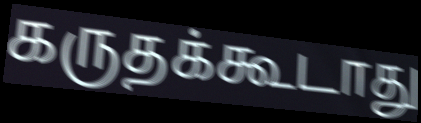
கருதக்கூடாது